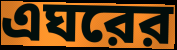
এঘরের